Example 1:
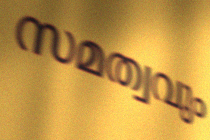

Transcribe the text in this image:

സമത്വവും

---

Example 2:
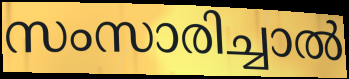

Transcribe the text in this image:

സംസാരിച്ചാൽ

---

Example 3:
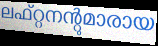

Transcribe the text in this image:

ലഫ്റ്റനന്റുമാരായ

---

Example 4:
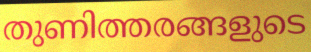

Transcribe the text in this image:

തുണിത്തരങ്ങളുടെ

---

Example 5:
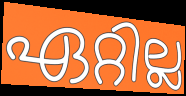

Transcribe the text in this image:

ഏറ്റില്ല